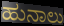
ಹುನಾಲು